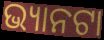
ଭ୍ୟାନଟା